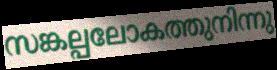
സങ്കല്പലോകത്തുനിന്നു